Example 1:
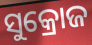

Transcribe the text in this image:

ସୁକ୍ରୋଜ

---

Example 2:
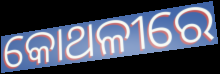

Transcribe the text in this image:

କୋଥଳୀରେ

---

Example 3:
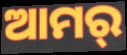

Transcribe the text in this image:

ଆମର୍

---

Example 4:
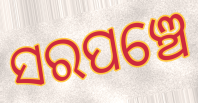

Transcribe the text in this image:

ସରପଞ୍ଚେ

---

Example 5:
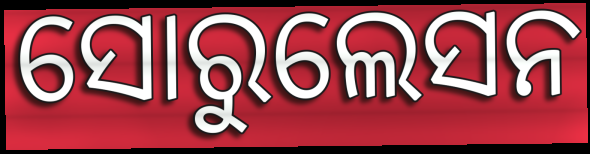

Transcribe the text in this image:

ସୋରୁଲେସନ